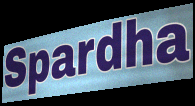
Spardha